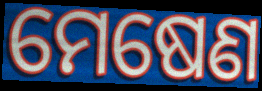
ମେଷେଣ